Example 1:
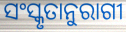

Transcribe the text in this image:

ସଂସ୍କୃତାନୁରାଗୀ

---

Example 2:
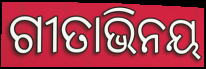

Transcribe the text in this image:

ଗୀତାଭିନୟ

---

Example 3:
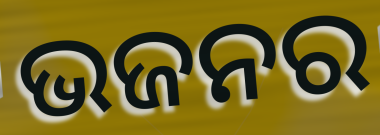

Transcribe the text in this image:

ଭଜନର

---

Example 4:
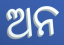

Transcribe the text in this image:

ଅନ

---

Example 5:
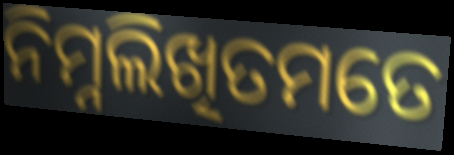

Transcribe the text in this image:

ନିମ୍ନଲିଖିତମତେ